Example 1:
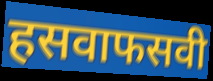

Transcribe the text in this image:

हसवाफसवी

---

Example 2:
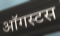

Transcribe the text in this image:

ऑगस्टस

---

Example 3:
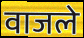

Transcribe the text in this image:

वाजले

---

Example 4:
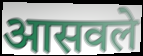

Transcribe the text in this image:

आसवले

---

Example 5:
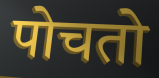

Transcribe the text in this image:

पोचतो